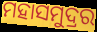
ମହାସମୁଦ୍ରର